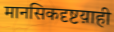
मानसिकदृष्टय़ाही